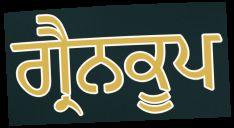
ਗ੍ਰੈਨਕੂਪ